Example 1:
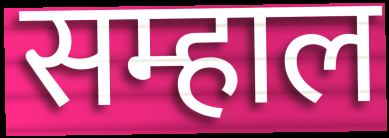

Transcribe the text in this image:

सम्हाल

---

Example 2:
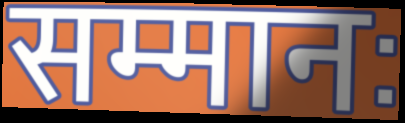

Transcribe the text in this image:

सम्मानः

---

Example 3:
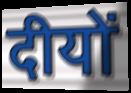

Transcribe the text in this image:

दीयों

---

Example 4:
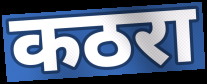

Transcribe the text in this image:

कठरा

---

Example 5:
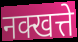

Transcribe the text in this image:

नक्खत्ते